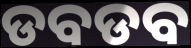
ଡବଡବ